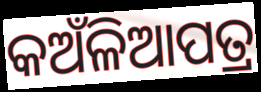
କଅଁଳିଆପତ୍ର